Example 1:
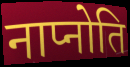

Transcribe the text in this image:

नाप्नोति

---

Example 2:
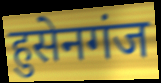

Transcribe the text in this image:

हुसेनगंज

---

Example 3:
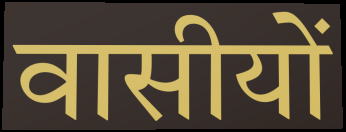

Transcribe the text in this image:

वासीयों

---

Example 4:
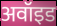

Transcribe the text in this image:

अवॉइड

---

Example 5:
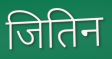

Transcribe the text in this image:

जितिन